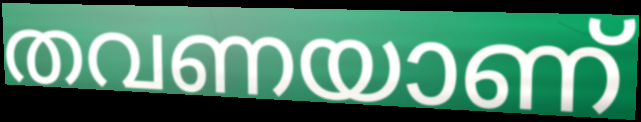
തവണയാണ്